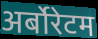
अर्बोरेटम